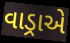
વાડ્રાએ